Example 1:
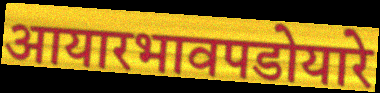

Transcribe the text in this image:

आयारभावपडोयारे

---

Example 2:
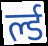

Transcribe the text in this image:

र्ल्ड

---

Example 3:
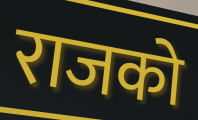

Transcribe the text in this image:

राजको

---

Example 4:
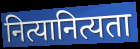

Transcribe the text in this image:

नित्यानित्यता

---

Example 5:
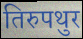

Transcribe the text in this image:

तिरुपथुर